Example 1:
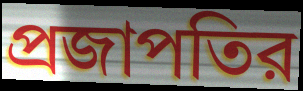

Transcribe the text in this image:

প্রজাপতির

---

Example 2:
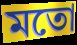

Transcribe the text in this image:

মতো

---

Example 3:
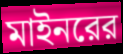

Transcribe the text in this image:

মাইনরের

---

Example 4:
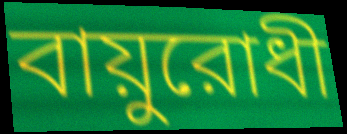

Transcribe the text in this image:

বায়ুরোধী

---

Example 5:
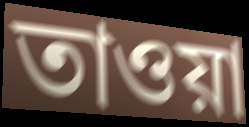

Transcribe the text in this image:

তাওয়া